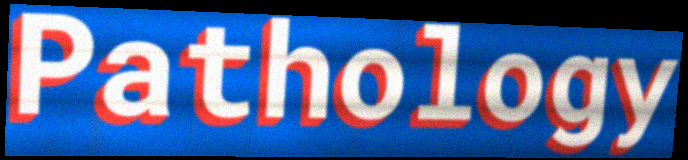
Pathology